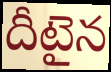
దీటైన